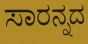
ಸಾರನ್ನದ